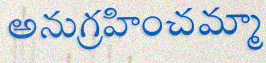
అనుగ్రహించమ్మా